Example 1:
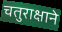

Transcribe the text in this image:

चतुराक्षाने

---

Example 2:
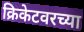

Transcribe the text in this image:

क्रिकेटवरच्या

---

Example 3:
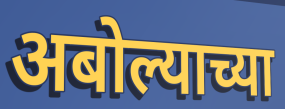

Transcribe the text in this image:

अबोल्याच्या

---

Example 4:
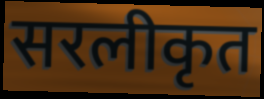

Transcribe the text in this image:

सरलीकृत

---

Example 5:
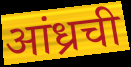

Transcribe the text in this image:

आंध्रची